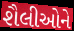
શૈલીઓને